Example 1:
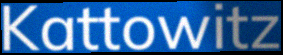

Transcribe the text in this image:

Kattowitz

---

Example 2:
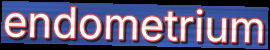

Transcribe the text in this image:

endometrium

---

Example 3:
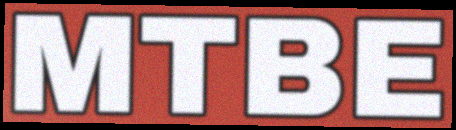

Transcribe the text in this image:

MTBE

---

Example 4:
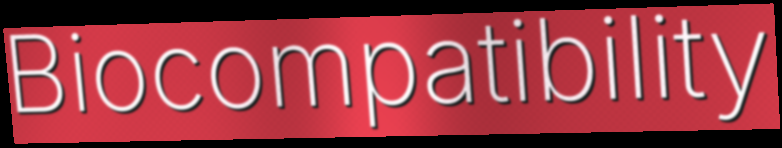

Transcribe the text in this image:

Biocompatibility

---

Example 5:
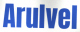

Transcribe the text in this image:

Arulvel